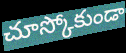
చూస్కోకుండా